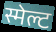
स्मेल्ट